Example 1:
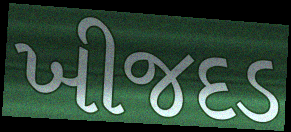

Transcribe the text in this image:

ખીજદડ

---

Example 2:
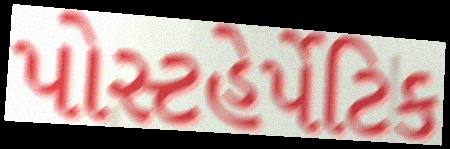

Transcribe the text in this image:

પોસ્ટહેર્પેટિક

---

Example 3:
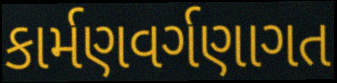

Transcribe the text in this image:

કાર્મણવર્ગણાગત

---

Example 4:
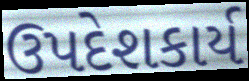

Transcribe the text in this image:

ઉપદેશકાર્ય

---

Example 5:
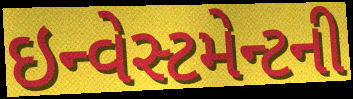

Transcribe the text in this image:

ઇન્વેસ્ટમેન્ટની